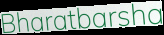
Bharatbarsha